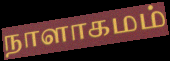
நாளாகமம்